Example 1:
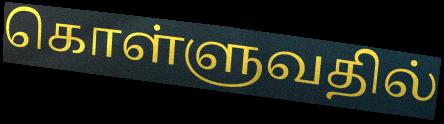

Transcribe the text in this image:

கொள்ளுவதில்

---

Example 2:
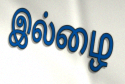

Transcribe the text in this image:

இல்ழை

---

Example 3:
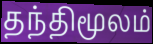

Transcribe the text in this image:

தந்திமூலம்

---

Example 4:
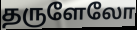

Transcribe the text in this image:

தருளேலோ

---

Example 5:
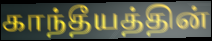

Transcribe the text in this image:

காந்தீயத்தின்